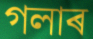
গলাৰ